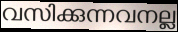
വസിക്കുന്നവനല്ല